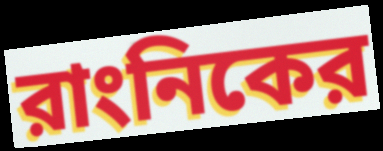
রাংনিকের